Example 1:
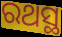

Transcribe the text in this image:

ରଥସ୍ଥ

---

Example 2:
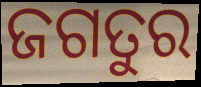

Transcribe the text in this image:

ଜଗତୁର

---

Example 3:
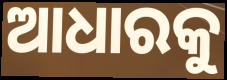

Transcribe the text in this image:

ଆଧାରକୁ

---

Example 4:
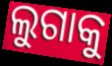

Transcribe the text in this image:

ଲୁଗାକୁ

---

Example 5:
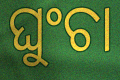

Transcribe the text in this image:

ଘୁଂଚା